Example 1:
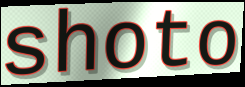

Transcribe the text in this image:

shoto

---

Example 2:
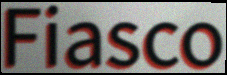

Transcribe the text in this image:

Fiasco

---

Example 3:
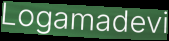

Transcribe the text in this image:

Logamadevi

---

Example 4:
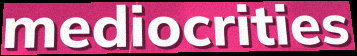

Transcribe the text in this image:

mediocrities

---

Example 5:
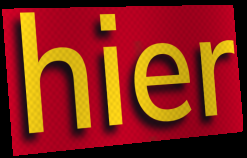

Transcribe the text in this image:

hier